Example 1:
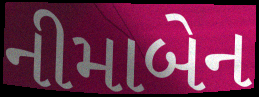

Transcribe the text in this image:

નીમાબેન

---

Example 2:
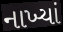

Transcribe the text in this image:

નાખ્યાં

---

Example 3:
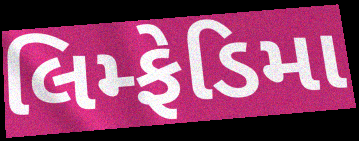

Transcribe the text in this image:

લિમ્ફેડિમા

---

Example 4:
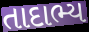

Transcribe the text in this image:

તાદાભ્ય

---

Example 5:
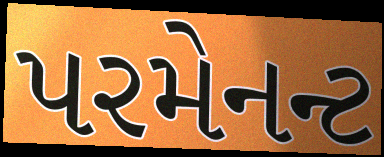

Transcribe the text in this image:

પરમેનન્ટ